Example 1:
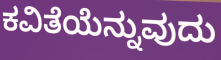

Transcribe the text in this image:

ಕವಿತೆಯೆನ್ನುವುದು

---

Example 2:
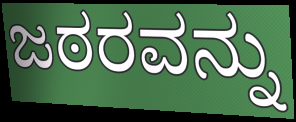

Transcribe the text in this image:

ಜಠರವನ್ನು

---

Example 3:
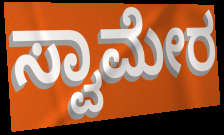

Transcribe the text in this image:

ಸ್ವಾಮೇರ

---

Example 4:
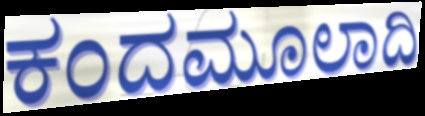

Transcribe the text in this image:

ಕಂದಮೂಲಾದಿ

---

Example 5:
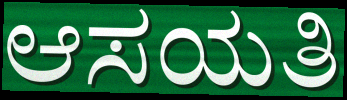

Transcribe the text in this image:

ಆಸಯತಿ